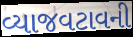
વ્યાજવટાવની